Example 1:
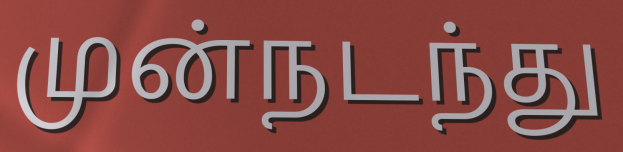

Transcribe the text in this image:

முன்நடந்து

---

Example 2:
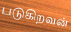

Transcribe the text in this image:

படுகிறவன்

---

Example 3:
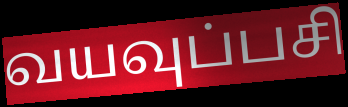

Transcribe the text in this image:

வயவுப்பசி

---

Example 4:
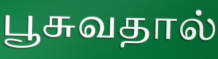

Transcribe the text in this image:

பூசுவதால்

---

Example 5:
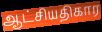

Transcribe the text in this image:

ஆட்சியதிகார